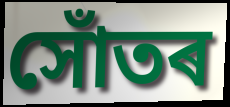
সোঁতৰ